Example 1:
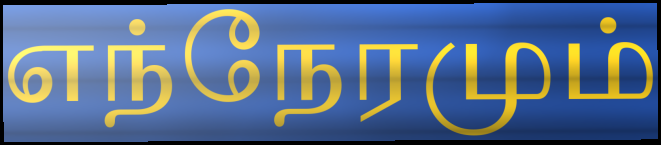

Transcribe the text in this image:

எந்நேரமும்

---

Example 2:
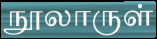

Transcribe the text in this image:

நூலாருள்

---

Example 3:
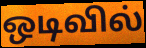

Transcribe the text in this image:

ஒடிவில்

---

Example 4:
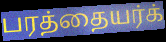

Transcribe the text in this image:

பரத்தையர்க்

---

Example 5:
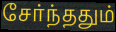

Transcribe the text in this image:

சேர்ந்ததும்